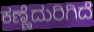
ಕಣ್ಣೆದುರಿಗಿದೆ